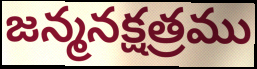
జన్మనక్షత్రము